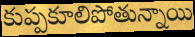
కుప్పకూలిపోతున్నాయి